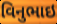
વિનુભાઇ